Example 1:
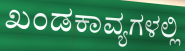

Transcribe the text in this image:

ಖಂಡಕಾವ್ಯಗಳಲ್ಲಿ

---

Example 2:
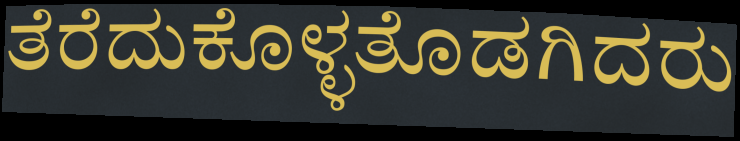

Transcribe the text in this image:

ತೆರೆದುಕೊಳ್ಳತೊಡಗಿದರು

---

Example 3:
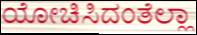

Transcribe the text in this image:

ಯೋಚಿಸಿದಂತೆಲ್ಲಾ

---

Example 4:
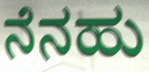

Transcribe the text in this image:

ನೆನಹು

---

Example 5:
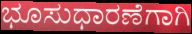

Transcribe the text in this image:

ಭೂಸುಧಾರಣೆಗಾಗಿ